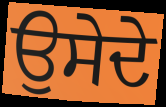
ਉਸੇਦੇ